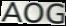
AOG